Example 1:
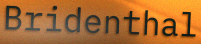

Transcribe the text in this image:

Bridenthal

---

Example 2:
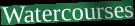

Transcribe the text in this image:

Watercourses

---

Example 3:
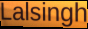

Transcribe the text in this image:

Lalsingh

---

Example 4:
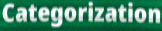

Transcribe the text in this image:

Categorization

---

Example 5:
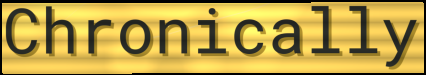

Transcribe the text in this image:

Chronically